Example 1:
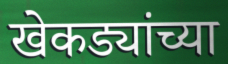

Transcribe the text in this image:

खेकड्यांच्या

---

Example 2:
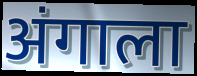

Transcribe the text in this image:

अंगाला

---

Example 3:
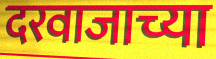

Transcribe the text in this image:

दरवाजाच्या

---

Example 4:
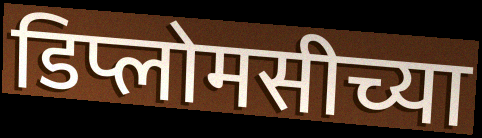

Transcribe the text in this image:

डिप्लोमसीच्या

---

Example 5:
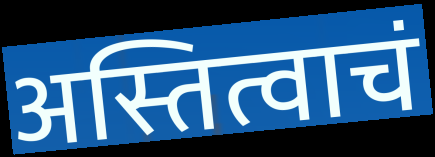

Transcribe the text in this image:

अस्तित्वाचं